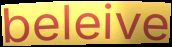
beleive